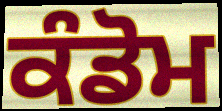
ਕੰਡੋਮ